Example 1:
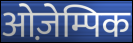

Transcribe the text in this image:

ओज़ेम्पिक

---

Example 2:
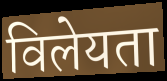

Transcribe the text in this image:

विलेयता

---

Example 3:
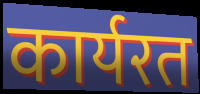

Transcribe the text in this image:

कार्यरत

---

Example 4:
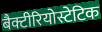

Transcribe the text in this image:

बैक्टीरियोस्टेटिक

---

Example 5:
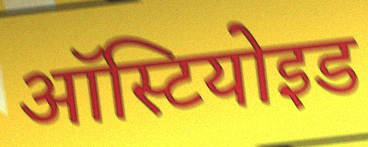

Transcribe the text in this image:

ऑस्टियोइड